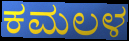
ಕಮಲಳ